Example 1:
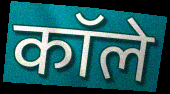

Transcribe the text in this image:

कॉले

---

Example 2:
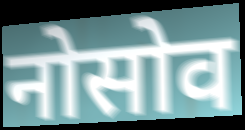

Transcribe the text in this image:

नोसोव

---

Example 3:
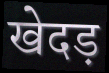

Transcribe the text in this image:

खेदड़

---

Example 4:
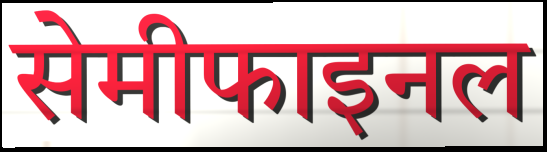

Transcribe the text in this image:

सेमीफाइनल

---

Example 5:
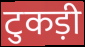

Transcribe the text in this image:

टुकड़ी